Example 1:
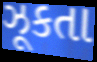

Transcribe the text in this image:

ઝૂકતા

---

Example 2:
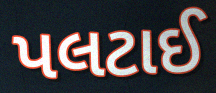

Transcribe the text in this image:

પલટાઈ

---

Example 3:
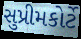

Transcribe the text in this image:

સુપ્રીમકોર્ટે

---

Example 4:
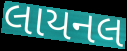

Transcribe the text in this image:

લાયનલ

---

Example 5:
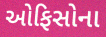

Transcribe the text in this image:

ઓફિસોના